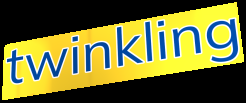
twinkling